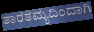
ತಾರತಮ್ಯದಿಂದಾಗಿ